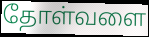
தோள்வளை